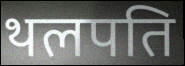
थलपति